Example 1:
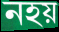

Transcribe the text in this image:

নহয়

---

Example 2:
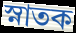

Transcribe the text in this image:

স্নাতক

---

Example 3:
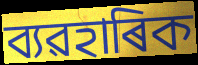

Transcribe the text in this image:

ব্যৱহাৰিক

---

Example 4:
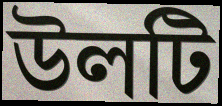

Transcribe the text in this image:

উলটি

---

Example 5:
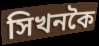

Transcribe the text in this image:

সিখনকৈ